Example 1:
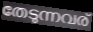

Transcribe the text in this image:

തേടുന്നവര്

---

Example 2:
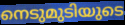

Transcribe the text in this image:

നെടുമുടിയുടെ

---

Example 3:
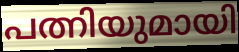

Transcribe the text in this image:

പത്നിയുമായി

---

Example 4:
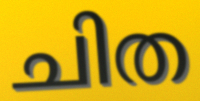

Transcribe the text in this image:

ചിത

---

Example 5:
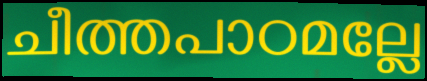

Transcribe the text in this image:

ചീത്തപാഠമല്ലേ